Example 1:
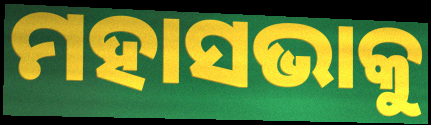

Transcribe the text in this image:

ମହାସଭାକୁ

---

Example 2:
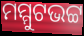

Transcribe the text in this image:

ମମ୍ମୁଟଭଟ୍ଟ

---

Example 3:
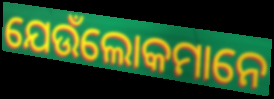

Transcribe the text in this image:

ଯେଉଁଲୋକମାନେ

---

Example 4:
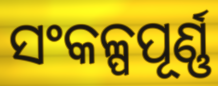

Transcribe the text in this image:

ସଂକଳ୍ପପୂର୍ଣ୍ଣ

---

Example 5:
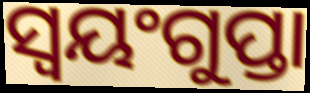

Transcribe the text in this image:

ସ୍ୱୟଂଗୁପ୍ତା